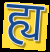
ह्य